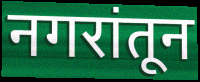
नगरांतून